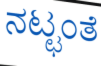
ನಟ್ಟಂತೆ